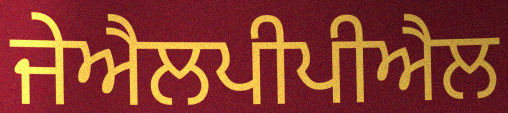
ਜੇਐਲਪੀਪੀਐਲ